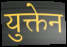
युक्तेन